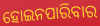
ହୋଇନପାରିବାର